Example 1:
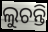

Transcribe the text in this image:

ଲୁଚନ୍ତି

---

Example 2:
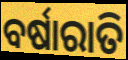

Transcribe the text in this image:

ବର୍ଷାରାତି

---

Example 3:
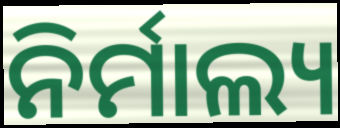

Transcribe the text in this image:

ନିର୍ମାଲ୍ୟ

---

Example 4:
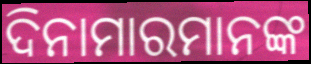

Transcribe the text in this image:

ଦିନାମାରମାନଙ୍କ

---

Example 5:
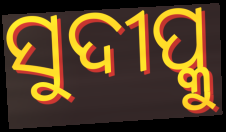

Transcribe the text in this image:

ସୁଦୀପ୍କୁ